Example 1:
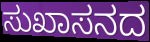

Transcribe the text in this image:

ಸುಖಾಸನದ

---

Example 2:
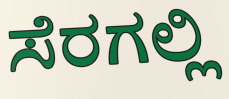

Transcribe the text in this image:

ಸೆರಗಲ್ಲಿ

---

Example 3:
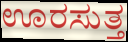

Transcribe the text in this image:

ಊರಸುತ್ತ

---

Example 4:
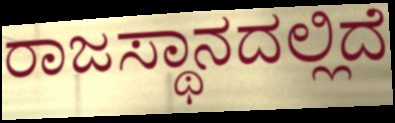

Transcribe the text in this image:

ರಾಜಸ್ಥಾನದಲ್ಲಿದೆ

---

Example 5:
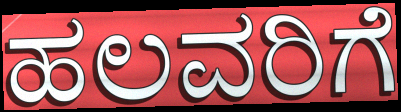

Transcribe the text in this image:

ಹಲವರಿಗೆ